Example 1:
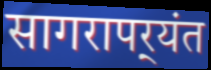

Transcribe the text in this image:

सागरापर्यंत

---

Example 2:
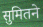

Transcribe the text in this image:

सुमितने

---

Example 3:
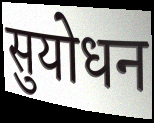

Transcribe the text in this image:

सुयोधन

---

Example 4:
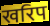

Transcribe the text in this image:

खरिप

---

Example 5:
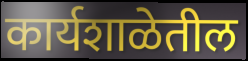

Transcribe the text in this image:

कार्यशाळेतील